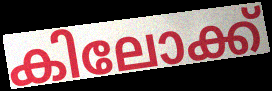
കിലോക്ക്